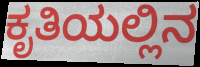
ಕೃತಿಯಲ್ಲಿನ